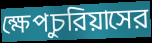
ক্ষেপচুরিয়াসের